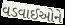
વડવાઈઓને